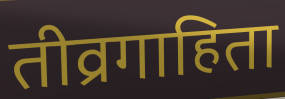
तीव्रगाहिता